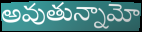
అవుతున్నామో